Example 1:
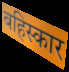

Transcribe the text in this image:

बहिस्कार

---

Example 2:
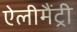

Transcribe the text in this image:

ऐलीमैंट्री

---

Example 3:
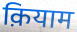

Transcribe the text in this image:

क़ियाम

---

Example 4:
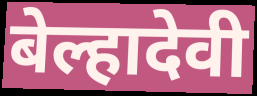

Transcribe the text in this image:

बेल्हादेवी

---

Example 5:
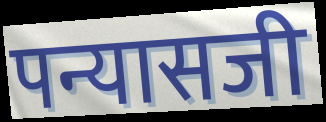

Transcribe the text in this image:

पन्यासजी